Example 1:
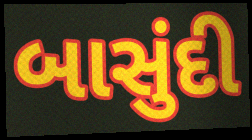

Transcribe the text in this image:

બાસુંદી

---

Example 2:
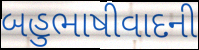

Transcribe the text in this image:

બહુભાષીવાદની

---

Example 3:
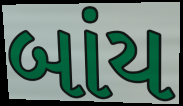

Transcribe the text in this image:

બાંય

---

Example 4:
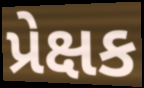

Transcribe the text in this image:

પ્રેક્ષક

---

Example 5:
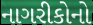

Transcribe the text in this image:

નાગરીકોનો